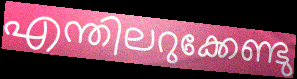
എന്തിലറുക്കേണ്ടു